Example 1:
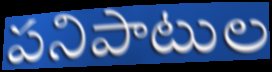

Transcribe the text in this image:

పనిపాటుల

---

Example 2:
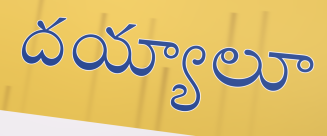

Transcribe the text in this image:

దయ్యాలూ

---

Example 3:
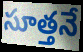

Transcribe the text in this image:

సూత్తనే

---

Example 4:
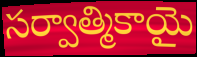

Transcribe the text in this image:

సర్వాత్మికాయై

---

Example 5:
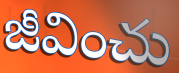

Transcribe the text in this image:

జీవించు